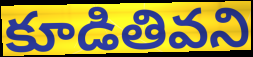
కూడితివని